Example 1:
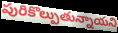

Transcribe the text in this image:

పురికొల్పుతున్నాయని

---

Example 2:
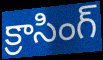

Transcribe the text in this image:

క్రాసింగ్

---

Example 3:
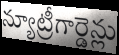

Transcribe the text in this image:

న్యూట్రీగార్డెన్లు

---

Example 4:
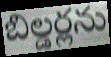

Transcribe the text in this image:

బిల్డర్లను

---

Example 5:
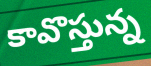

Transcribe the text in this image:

కావొస్తున్న